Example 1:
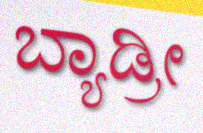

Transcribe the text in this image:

ಬ್ಯಾಡ್ರೀ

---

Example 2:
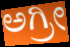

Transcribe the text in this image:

ಅಗ್ರೀ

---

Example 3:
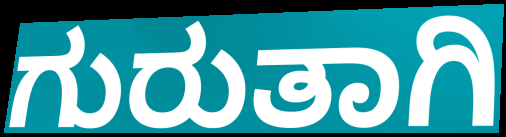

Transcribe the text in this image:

ಗುರುತಾಗಿ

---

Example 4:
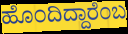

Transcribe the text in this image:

ಹೊಂದಿದ್ದಾರೆಂಬ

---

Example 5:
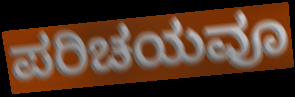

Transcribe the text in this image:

ಪರಿಚಯವೂ